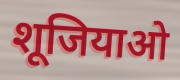
शूजियाओ